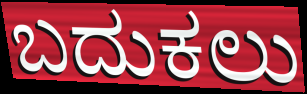
ಬದುಕಲು